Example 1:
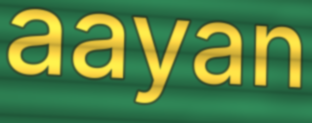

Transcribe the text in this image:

aayan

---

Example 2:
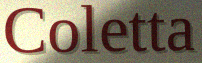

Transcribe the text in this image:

Coletta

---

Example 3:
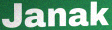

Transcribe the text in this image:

Janak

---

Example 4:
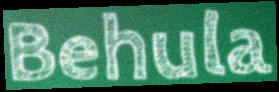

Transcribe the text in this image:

Behula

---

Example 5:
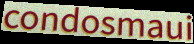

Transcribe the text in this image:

condosmaui